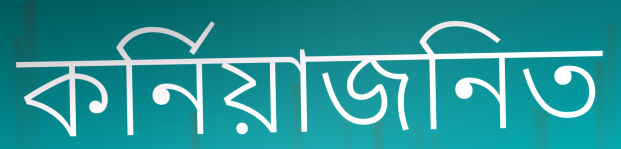
কর্নিয়াজনিত